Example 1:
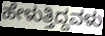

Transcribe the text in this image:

ಹೇಳುತ್ತಿದ್ದವಳು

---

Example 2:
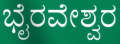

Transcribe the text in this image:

ಭೈರವೇಶ್ವರ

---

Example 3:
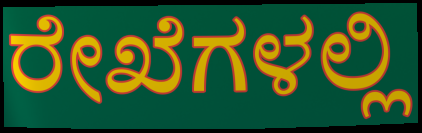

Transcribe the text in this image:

ರೇಖೆಗಳಲ್ಲಿ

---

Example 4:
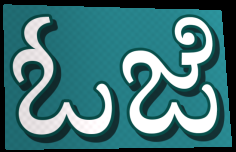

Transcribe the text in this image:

ಓಜೆ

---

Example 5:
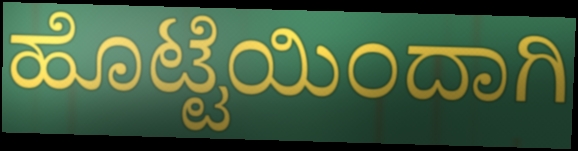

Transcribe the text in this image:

ಹೊಟ್ಟೆಯಿಂದಾಗಿ